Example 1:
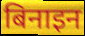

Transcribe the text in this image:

बिनाइन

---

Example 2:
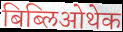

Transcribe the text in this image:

बिब्लिओथेक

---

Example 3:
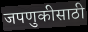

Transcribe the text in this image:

जपणुकीसाठी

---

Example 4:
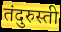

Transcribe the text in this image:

तंदुरुस्ती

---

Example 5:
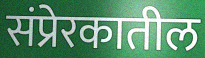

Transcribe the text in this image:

संप्रेरकातील